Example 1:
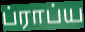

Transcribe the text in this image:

ப்ராப்ய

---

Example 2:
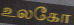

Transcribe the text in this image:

உலகோ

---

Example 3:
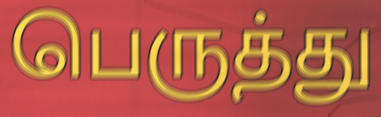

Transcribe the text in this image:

பெருத்து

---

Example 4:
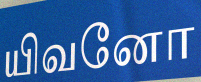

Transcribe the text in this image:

யிவனோ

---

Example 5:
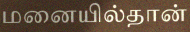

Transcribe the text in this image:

மனையில்தான்